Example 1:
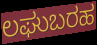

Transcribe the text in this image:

ಲಘುಬರಹ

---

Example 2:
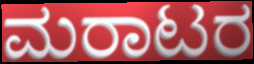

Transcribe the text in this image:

ಮರಾಟರ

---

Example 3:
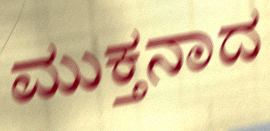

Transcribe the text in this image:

ಮುಕ್ತನಾದ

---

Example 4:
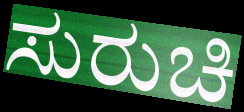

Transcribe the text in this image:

ಸುರುಚಿ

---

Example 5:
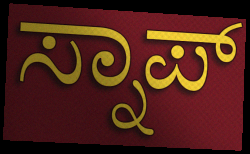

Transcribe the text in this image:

ಸ್ನಾಪ್